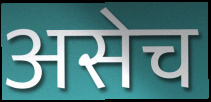
असेच